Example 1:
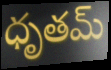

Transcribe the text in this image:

ధృతమ్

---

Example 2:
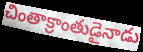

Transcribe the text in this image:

చింతాక్రాంతుడైనాడు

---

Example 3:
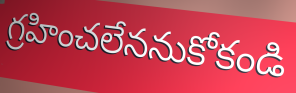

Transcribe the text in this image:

గ్రహించలేననుకోకండి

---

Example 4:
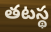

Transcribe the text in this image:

తటస్థ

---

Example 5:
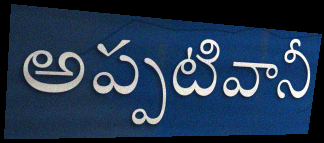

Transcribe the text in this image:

అప్పటివానీ